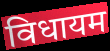
विधायम